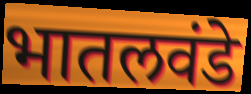
भातलवंडे